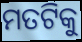
ମତଟିକୁ